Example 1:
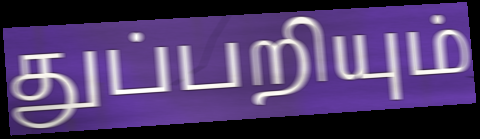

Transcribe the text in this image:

துப்பறியும்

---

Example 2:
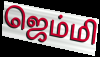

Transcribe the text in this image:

ஜெம்மி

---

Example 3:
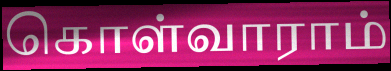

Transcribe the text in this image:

கொள்வாராம்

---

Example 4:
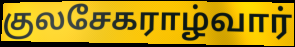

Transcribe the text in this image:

குலசேகராழ்வார்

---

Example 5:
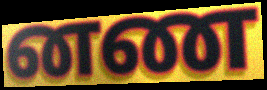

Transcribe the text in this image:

னண